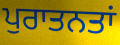
ਪੁਰਾਤਨਤਾਂ